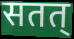
सतत्